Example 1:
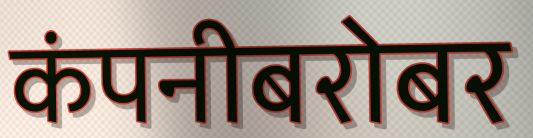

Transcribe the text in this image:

कंपनीबरोबर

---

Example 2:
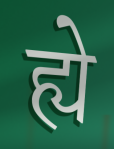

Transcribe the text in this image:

ह्ये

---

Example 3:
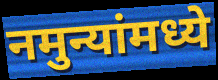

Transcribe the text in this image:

नमुन्यांमध्ये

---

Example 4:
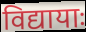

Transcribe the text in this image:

विद्यायाः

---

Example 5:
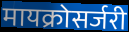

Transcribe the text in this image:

मायक्रोसर्जरी